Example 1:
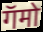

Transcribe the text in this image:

गॅमो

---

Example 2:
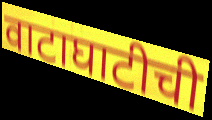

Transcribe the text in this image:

वाटाघाटीची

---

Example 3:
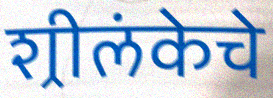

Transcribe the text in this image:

श्रीलंकेचे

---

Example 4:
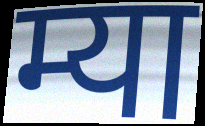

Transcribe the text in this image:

म्या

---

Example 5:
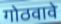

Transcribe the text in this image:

गोठवावे